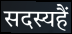
सदस्यहैं